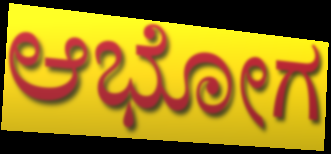
ಆಭೋಗ